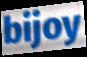
bijoy